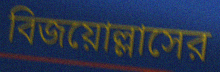
বিজয়োল্লাসের